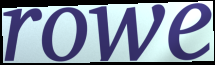
rowe